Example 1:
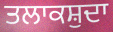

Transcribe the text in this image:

ਤਲਾਕਸ਼ੁਦਾ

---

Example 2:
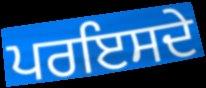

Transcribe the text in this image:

ਪਰਇਸਦੇ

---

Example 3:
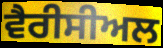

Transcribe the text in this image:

ਵੈਰੀਸੀਅਲ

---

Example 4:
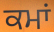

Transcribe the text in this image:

ਕਮਾਂ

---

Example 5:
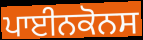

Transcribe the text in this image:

ਪਾਈਨਕੋਨਸ